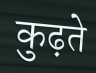
कुढ़ते